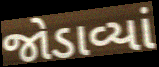
જોડાવ્યાં